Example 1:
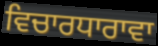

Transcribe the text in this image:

ਵਿਚਾਰਧਾਰਾਵਾ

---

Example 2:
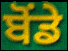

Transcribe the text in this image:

ਬੋਂਡੇ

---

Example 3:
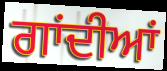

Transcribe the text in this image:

ਗਾਂਦੀਆਂ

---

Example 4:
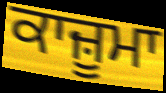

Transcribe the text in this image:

ਕਾਜ਼ੂਮਾ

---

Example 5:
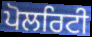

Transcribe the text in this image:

ਪੋਲਰਿਟੀ